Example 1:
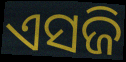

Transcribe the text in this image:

ଏସଜି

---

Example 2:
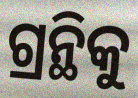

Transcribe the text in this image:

ଗ୍ରନ୍ଥିକୁ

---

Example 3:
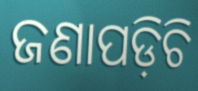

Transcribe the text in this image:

ଜଣାପଡ଼ିଚି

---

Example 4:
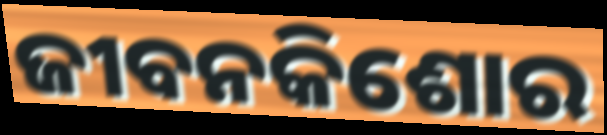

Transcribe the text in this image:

ଜୀବନକିଶୋର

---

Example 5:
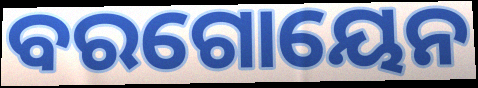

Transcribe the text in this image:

ବରଗୋୟେନ